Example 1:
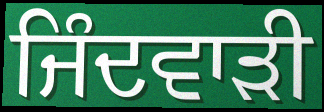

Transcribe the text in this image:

ਜਿੰਦਵਾੜੀ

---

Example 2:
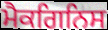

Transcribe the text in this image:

ਮੈਕਗਿਨਿਸ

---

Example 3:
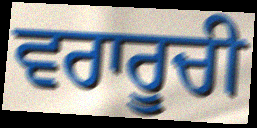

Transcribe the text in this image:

ਵਰਾਰੂਚੀ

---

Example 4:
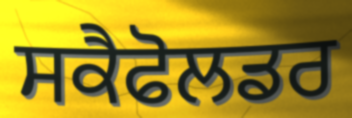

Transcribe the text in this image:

ਸਕੈਫੋਲਡਰ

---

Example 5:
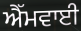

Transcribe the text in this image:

ਐੱਮਵਾਈ